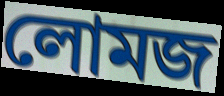
লোমজ